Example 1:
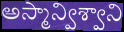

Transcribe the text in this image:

అస్మాన్విశ్వాని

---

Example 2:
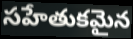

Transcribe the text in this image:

సహేతుకమైన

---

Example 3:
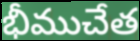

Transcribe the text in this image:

భీముచేత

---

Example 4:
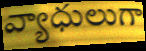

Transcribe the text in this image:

వ్యాధులుగా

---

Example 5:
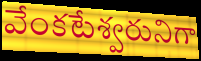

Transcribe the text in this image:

వేంకటేశ్వరునిగా